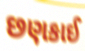
છણકાઈ